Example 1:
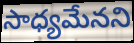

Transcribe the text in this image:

సాధ్యమేనని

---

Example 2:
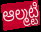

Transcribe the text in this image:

ఆల్మట్టి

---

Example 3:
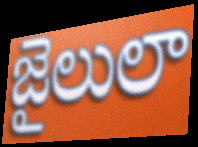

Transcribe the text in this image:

జైలులా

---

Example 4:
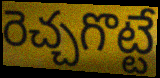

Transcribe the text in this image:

రెచ్చగొట్టే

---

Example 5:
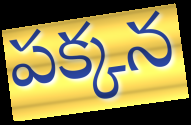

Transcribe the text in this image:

పక్కన